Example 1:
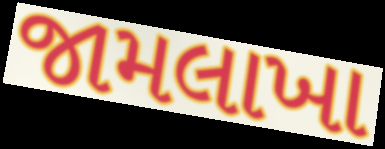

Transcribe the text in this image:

જામલાખા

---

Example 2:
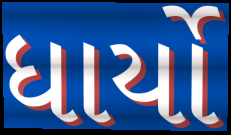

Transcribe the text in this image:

ધાર્યો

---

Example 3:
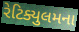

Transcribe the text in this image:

રેટિક્યુલમના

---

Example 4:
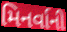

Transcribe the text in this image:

મિનર્વાની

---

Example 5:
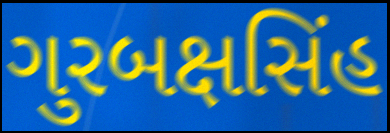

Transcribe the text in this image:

ગુરબક્ષસિંહ